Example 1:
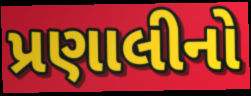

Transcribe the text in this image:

પ્રણાલીનો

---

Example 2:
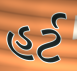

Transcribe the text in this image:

હર્ટ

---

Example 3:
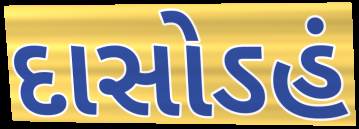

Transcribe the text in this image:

દાસોઽહં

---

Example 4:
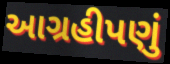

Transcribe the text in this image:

આગ્રહીપણું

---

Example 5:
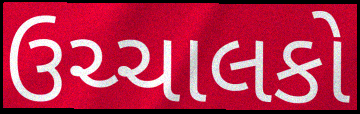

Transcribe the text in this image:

ઉચ્ચાલકો